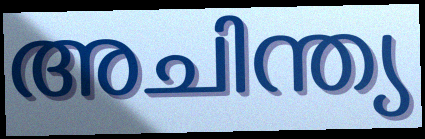
അചിന്ത്യ